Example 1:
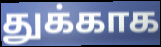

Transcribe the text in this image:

துக்காக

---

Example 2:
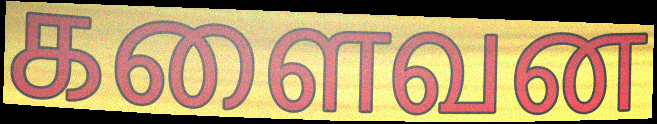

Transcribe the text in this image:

களைவன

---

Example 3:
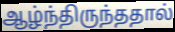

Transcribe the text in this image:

ஆழ்ந்திருந்ததால்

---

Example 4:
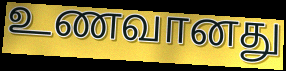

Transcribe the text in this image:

உணவானது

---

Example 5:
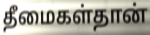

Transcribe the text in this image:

தீமைகள்தான்